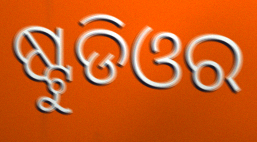
ଷ୍ଟୁଡିଓର